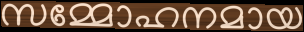
സമ്മോഹനമായ